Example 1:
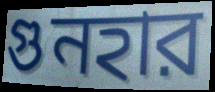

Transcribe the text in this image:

গুনহার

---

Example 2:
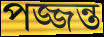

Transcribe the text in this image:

পজ্জন্ত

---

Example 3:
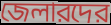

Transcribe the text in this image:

জেলারদের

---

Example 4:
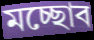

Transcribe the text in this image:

মচ্ছোব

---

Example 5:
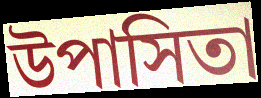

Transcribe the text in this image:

উপাসিতা